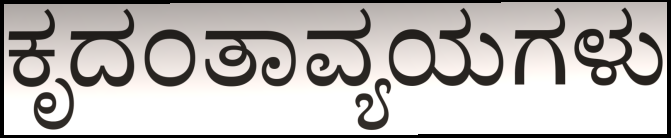
ಕೃದಂತಾವ್ಯಯಗಳು